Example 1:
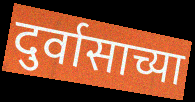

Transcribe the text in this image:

दुर्वासाच्या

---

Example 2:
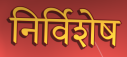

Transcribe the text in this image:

निर्विशेष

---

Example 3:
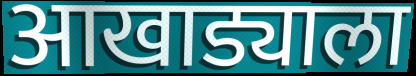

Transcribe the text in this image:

आखाड्याला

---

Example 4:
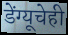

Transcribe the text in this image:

डेंग्यूचेही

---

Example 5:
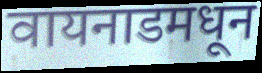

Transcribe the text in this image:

वायनाडमधून